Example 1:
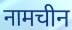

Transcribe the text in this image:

नामचीन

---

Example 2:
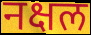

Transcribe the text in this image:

नक्षल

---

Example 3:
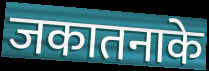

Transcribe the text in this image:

जकातनाके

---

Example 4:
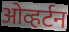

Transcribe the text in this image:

ओव्हर्टन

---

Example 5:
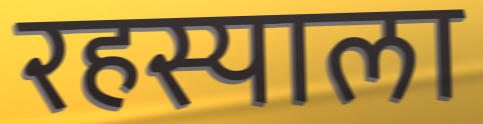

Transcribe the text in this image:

रहस्याला